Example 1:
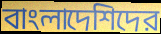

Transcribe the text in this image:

বাংলাদেশিদের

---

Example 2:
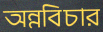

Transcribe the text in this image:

অন্নবিচার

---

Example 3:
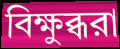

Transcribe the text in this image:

বিক্ষুব্ধরা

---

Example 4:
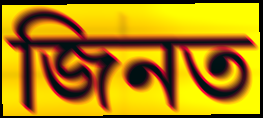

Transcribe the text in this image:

জিনত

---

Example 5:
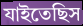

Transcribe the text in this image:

যাইতেছিস